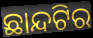
ଛାନ୍ଦଟିର